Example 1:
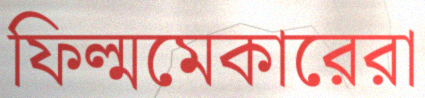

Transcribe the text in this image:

ফিল্মমেকারেরা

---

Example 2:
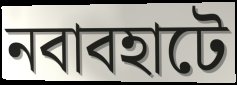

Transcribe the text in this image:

নবাবহাটে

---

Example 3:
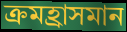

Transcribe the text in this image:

ক্রমহ্রাসমান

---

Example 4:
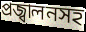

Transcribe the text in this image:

প্রজ্বালনসহ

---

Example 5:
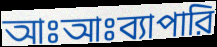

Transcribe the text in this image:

আঃআঃব্যাপারি